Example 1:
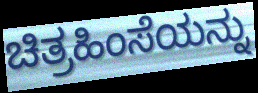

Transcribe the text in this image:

ಚಿತ್ರಹಿಂಸೆಯನ್ನು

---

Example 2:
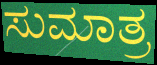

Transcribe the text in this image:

ಸುಮಾತ್ರ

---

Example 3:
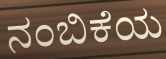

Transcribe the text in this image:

ನಂಬಿಕೆಯ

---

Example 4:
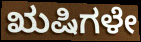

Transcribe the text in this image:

ಋಷಿಗಳೇ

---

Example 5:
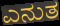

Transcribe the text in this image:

ಎನುತ